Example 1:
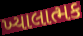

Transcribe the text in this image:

ખ્યાલાત્મક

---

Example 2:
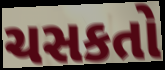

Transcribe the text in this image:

ચસકતો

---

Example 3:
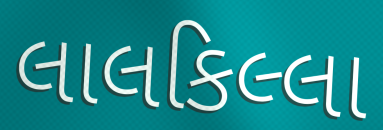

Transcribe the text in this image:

લાલકિલ્લા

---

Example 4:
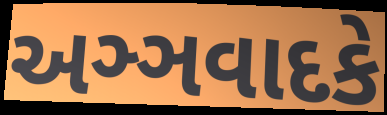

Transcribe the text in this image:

અઞ્ઞવાદકે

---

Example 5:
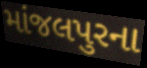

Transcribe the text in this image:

માંજલપુરના